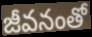
జీవనంతో